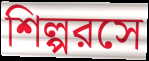
শিল্পরসে